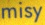
misy